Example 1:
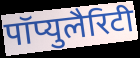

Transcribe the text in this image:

पॉप्युलैरिटी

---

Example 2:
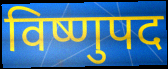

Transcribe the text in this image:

विष्‍णुपद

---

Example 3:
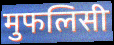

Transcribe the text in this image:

मुफलिसी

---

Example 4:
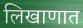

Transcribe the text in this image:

लिखाणात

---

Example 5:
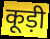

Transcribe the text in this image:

कूड़ी